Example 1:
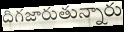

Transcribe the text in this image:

దిగజారుతున్నారు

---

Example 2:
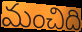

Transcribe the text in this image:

మంచిది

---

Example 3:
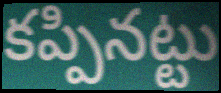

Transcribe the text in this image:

కప్పినట్టు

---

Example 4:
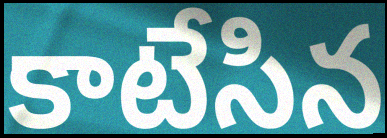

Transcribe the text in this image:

కాటేసిన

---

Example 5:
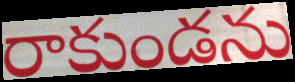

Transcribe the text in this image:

రాకుండను